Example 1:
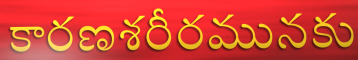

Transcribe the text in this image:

కారణశరీరమునకు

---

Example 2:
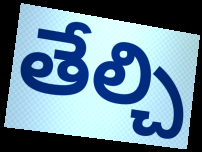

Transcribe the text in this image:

తేల్చి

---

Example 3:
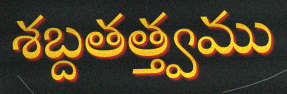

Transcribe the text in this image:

శబ్దతత్త్వము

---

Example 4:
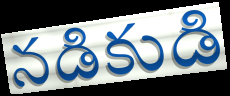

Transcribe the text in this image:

నడికుడి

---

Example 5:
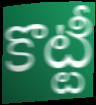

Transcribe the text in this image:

కొట్టీ